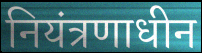
नियंत्रणाधीन